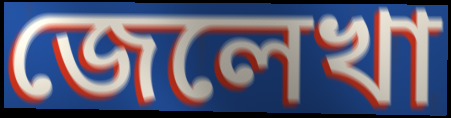
জেলেখা